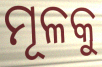
ମୂଳକୁ